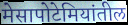
मेसापोटेमियांतील